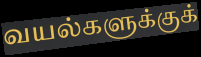
வயல்களுக்குக்